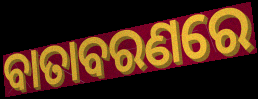
ବାତାବରଣରେ